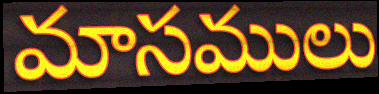
మాసములు